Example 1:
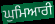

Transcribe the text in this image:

ਘੁਮਿਆਰੀ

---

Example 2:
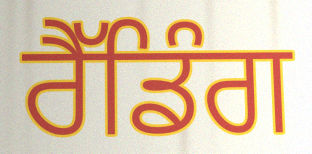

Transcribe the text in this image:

ਰੈੱਡਿੰਗ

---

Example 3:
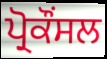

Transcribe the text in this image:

ਪ੍ਰੋਕੌਂਸਲ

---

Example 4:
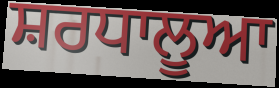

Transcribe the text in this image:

ਸ਼ਰਧਾਲੂਆ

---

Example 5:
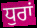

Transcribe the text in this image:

ਧੁਰਾਂ